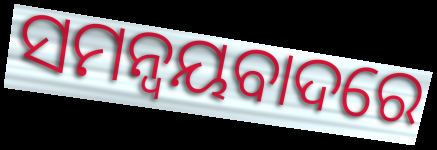
ସମନ୍ୱୟବାଦରେ